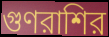
গুণরাশির